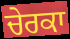
ਚੇਰਕਾ